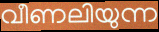
വീണലിയുന്ന